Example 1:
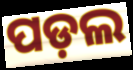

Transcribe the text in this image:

ପଡ଼ଲ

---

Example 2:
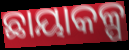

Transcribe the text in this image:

ଛାୟାକଳ୍ପ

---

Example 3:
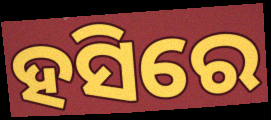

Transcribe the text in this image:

ହସିରେ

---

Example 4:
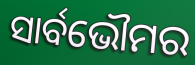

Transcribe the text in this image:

ସାର୍ବଭୌମର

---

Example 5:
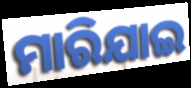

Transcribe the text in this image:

ମାରିଯାଇ